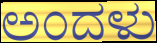
ಅಂದಳು